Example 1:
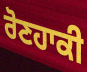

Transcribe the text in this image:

ਰੋਣਹਾਕੀ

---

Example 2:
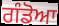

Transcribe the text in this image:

ਗੰਡੋਆ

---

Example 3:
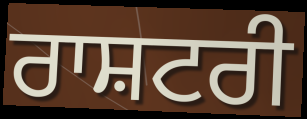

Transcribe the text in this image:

ਰਾਸ਼ਟਰੀ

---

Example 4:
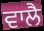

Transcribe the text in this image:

ਵਾਲੈ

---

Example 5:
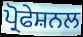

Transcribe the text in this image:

ਪ੍ਰੋਫੇਸ਼ਨਲ